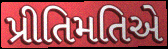
પ્રીતિમતિએ